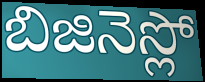
బిజినెస్లో